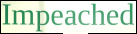
Impeached